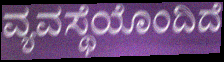
ವ್ಯವಸ್ಥೆಯೊಂದಿದೆ